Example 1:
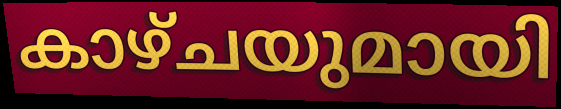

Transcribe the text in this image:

കാഴ്ചയുമായി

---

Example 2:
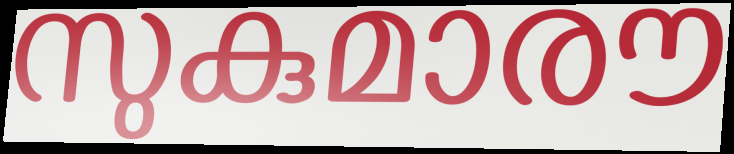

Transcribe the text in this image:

സുകുമാരൗ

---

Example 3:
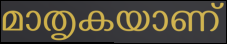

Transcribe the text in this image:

മാതൃകയാണ്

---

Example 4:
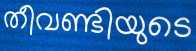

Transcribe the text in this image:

തീവണ്ടിയുടെ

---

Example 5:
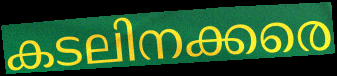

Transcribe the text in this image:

കടലിനക്കരെ